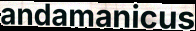
andamanicus